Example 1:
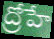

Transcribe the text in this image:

ద్రోహే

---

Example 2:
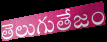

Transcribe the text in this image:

తెలుగుతేజం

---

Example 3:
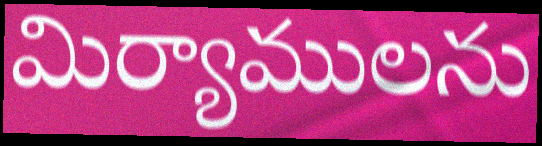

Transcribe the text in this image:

మిర్యాములను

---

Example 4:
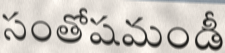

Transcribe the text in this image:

సంతోషమండీ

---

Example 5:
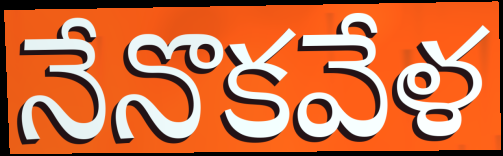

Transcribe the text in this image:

నేనొకవేళ